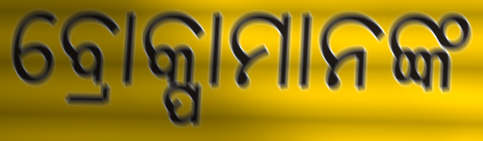
ବ୍ରୋକ୍ପାମାନଙ୍କ